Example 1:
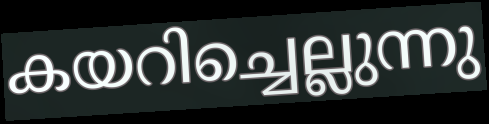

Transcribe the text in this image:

കയറിച്ചെല്ലുന്നു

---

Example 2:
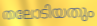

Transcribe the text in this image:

തലോടിയതും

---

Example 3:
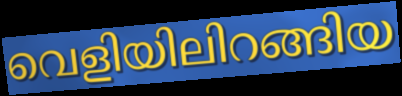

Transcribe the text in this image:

വെളിയിലിറങ്ങിയ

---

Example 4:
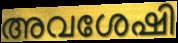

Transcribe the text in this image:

അവശേഷി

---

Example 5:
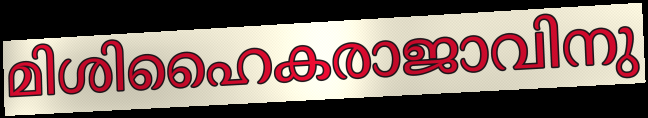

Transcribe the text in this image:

മിശിഹൈകരാജാവിനു